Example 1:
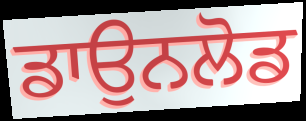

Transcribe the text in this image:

ਡਾਉਨਲੋਡ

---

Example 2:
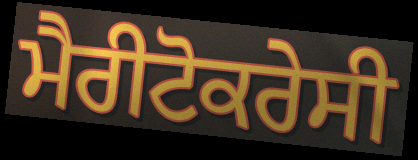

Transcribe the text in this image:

ਮੈਰੀਟੋਕਰੇਸੀ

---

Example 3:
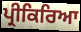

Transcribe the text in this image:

ਪ੍ਰੀਕਿਰਿਆ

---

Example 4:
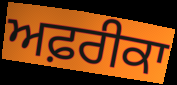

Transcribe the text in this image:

ਅਫ਼ਰੀਕਾ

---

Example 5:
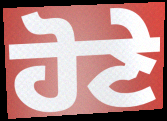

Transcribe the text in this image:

ਹੋਣੇ